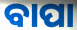
ବାପା